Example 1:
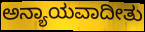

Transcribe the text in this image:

ಅನ್ಯಾಯವಾದೀತು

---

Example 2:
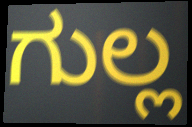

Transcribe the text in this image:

ಗುಲ್ಲ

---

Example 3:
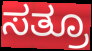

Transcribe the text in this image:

ಸತ್ರೂ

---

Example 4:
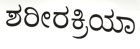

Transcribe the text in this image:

ಶರೀರಕ್ರಿಯಾ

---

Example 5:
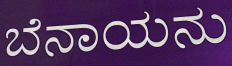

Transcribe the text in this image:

ಬೆನಾಯನು